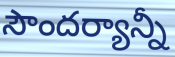
సౌందర్యాన్నీ